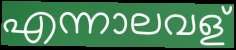
എന്നാലവള്